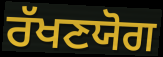
ਰੱਖਣਯੋਗ